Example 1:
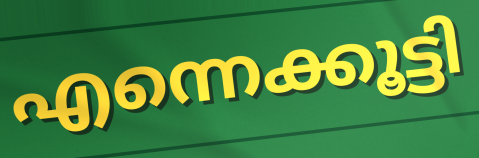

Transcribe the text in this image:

എന്നെക്കൂട്ടി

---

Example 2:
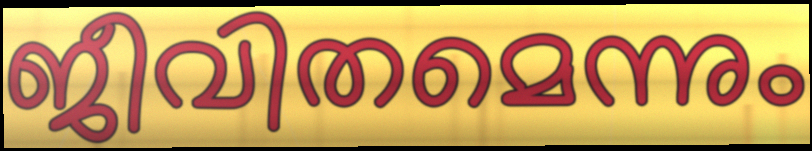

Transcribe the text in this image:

ജീവിതമെന്നും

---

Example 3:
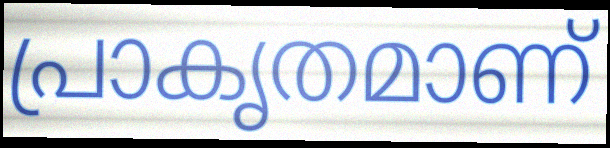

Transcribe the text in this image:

പ്രാകൃതമാണ്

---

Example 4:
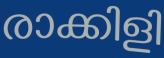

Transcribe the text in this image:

രാക്കിളി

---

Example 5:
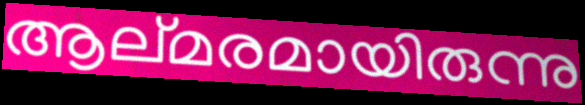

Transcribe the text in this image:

ആല്മരമായിരുന്നു